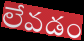
లేవడం